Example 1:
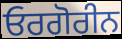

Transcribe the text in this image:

ਓਰਗੋਰੀਨ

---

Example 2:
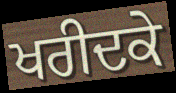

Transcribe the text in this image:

ਖਰੀਦਕੇ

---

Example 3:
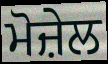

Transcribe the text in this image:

ਮੋਜ਼ੇਲ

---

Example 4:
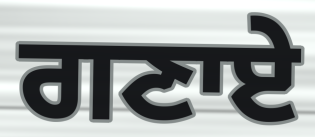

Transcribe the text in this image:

ਗਣਾਏ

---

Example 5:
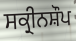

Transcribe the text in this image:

ਸਕ੍ਰੀਨਸ਼ੌਪ